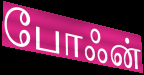
போஃன்